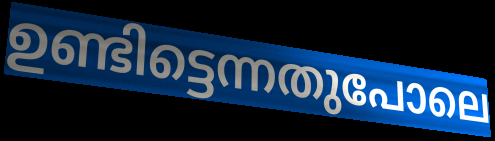
ഉണ്ടിട്ടെന്നതുപോലെ